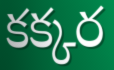
కక్కర